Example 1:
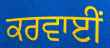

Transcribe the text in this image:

ਕਰਵਾਈਂ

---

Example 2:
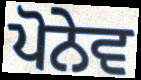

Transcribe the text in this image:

ਪੋਨੇਵ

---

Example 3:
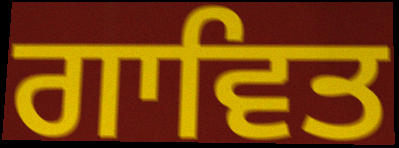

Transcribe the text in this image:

ਗਾਵਿਤ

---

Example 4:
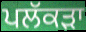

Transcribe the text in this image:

ਪਲੱਕੜਾ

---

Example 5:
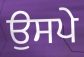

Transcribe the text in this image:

ਉਸਪੇ